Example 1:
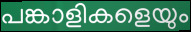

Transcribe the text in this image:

പങ്കാളികളെയും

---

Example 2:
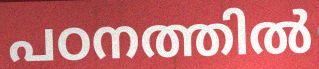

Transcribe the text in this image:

പഠനത്തിൽ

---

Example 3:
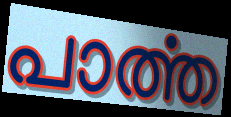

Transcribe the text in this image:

പാൎത്ത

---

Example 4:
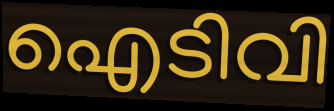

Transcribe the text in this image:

ഐടിവി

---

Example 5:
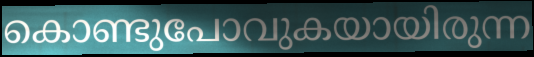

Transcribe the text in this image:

കൊണ്ടുപോവുകയായിരുന്ന